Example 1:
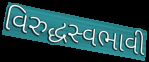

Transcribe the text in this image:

વિરુદ્ધસ્વભાવી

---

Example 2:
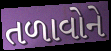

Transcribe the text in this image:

તળાવોને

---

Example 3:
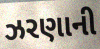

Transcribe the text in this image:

ઝરણાની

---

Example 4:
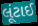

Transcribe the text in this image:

લૂંટાઈ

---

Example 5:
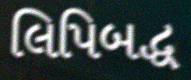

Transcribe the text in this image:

લિપિબદ્ધ